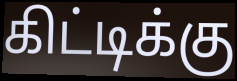
கிட்டிக்கு